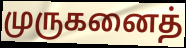
முருகனைத்